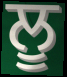
ਲੂ